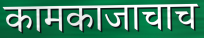
कामकाजाचाच